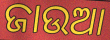
ଜାଉଆ